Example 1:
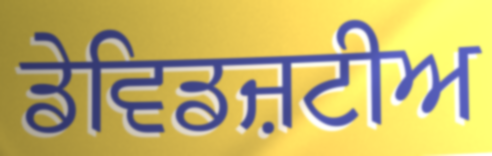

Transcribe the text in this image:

ਡੇਵਿਡਜ਼ਟੀਅ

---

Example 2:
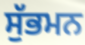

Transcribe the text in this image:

ਸੁੱਭਮਨ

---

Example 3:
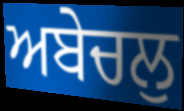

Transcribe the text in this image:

ਅਬੇਚਲੁ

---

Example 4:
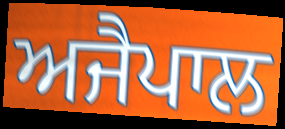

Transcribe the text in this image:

ਅਜੈਪਾਲ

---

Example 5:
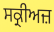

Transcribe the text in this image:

ਸਕ੍ਰੀਅਜ਼